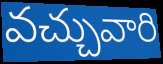
వచ్చువారి